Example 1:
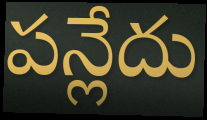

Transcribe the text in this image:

పన్లేదు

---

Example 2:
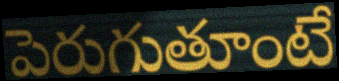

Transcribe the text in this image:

పెరుగుతూంటే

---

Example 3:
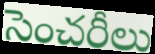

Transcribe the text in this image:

సెంచరీలు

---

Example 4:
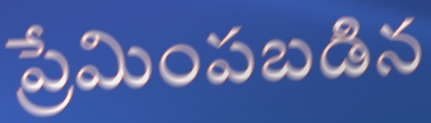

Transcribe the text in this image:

ప్రేమింపబడిన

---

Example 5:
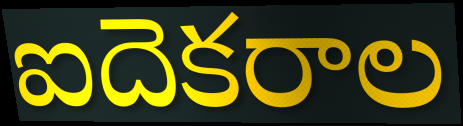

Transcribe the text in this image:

ఐదెకరాల